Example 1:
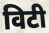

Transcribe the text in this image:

विटी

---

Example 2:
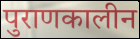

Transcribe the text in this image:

पुराणकालीन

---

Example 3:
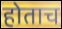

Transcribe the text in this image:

होताच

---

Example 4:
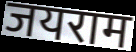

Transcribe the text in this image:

जयराम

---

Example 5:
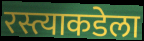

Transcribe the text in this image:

रस्त्याकडेला